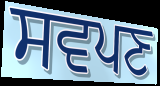
ਸਵਪਣ